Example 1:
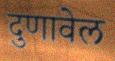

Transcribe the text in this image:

दुणावेल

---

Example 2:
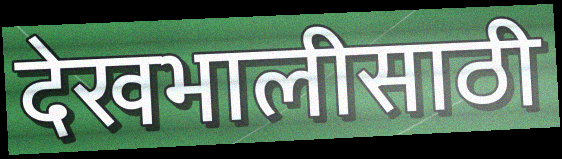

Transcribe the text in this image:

देखभालीसाठी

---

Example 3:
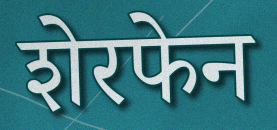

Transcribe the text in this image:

शेरफेन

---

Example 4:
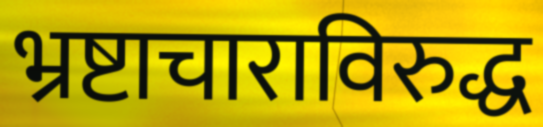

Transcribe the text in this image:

भ्रष्टाचाराविरुद्ध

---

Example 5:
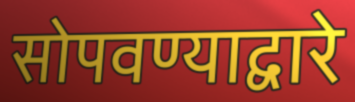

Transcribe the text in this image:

सोपवण्याद्वारे